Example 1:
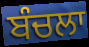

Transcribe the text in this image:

ਬੰਚਲਾ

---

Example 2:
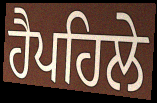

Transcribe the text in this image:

ਹੈਪਹਿਲੇ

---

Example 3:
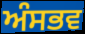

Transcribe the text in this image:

ਅੰਸਭਵ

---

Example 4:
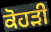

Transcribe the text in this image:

ਕੋਹੜੀ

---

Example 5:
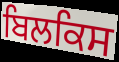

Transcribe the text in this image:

ਬਿਲਕਿਸ